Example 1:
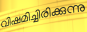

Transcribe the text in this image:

വിഷമിച്ചിരിക്കുന്നു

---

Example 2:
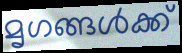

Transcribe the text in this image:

മൃഗങ്ങൾക്ക്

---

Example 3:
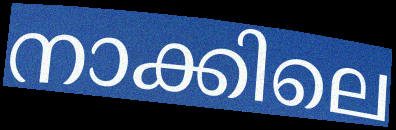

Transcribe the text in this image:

നാക്കിലെ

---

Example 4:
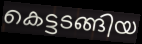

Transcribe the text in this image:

കെട്ടടങ്ങിയ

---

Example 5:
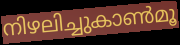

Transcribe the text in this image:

നിഴലിച്ചുകാൺമൂ